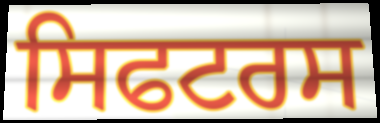
ਸਿਫਟਰਸ